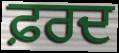
ਫ਼ਰਦ